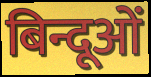
बिन्दूओं